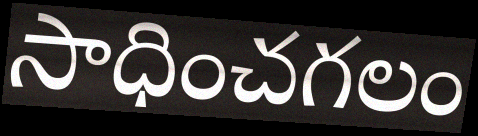
సాధించగలం